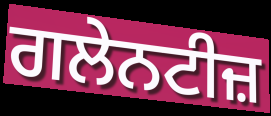
ਗਲੇਨਟੀਜ਼